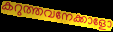
കറുത്തവനേക്കാളോ